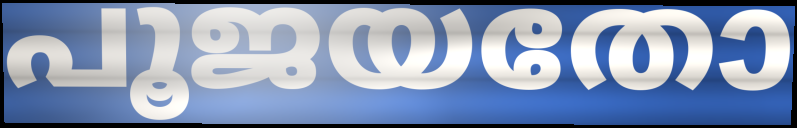
പൂജയതോ